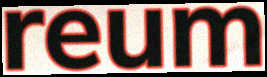
reum